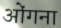
ओंगना